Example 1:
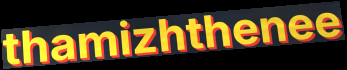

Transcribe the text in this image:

thamizhthenee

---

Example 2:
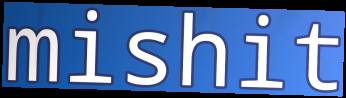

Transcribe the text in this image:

mishit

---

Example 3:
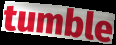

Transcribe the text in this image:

tumble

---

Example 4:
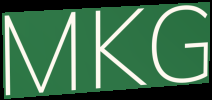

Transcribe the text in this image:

MKG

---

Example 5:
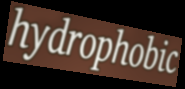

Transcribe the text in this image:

hydrophobic